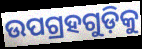
ଉପଗ୍ରହଗୁଡ଼ିକୁ